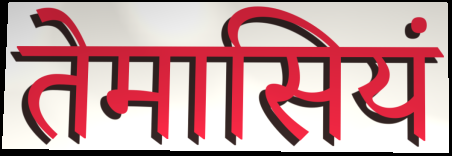
तेमासियं